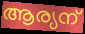
ആര്യന്